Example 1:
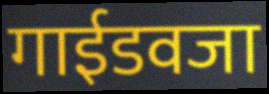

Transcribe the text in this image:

गाईडवजा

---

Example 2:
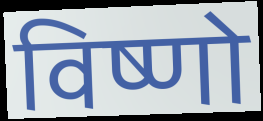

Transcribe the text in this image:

विष्णो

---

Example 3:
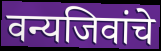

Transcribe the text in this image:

वन्यजिवांचे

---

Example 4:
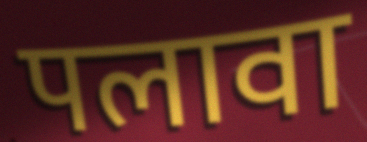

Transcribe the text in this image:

पलावा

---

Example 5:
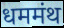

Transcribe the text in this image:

धममंथ